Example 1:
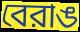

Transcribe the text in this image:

বেরাঙ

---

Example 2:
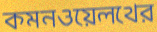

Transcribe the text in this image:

কমনওয়েলথের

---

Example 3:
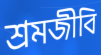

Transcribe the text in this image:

শ্রমজীবি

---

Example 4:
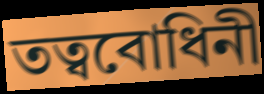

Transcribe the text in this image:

তত্ববোধিনী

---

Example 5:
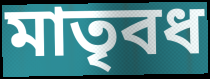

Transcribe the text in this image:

মাতৃবধ